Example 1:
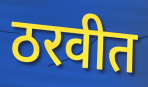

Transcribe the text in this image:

ठरवीत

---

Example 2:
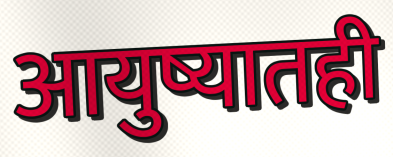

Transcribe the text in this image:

आयुष्यातही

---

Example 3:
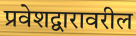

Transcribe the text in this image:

प्रवेशद्वारावरील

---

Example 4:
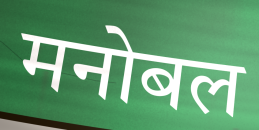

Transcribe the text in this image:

मनोबल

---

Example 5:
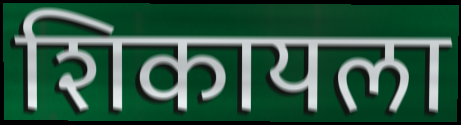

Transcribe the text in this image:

शिकायला